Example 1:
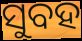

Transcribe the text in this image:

ସୁବହ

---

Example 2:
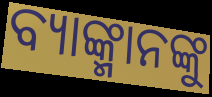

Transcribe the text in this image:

ବ୍ୟାଙ୍କ୍ମାନଙ୍କୁ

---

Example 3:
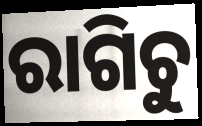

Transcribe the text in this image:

ରାଗିଚୁ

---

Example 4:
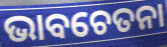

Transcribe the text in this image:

ଭାବଚେତନା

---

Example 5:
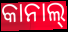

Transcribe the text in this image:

କାନାଲ୍